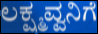
ಲಕ್ಷ್ಮವ್ವನಿಗೆ